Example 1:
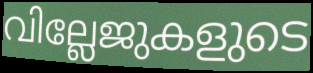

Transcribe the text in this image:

വില്ലേജുകളുടെ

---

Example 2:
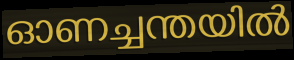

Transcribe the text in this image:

ഓണച്ചന്തയിൽ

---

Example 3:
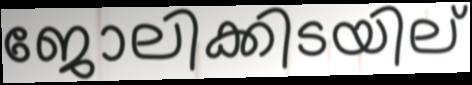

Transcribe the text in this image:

ജോലിക്കിടയില്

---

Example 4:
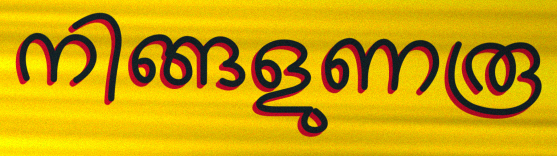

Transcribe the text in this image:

നിങ്ങളുണരൂ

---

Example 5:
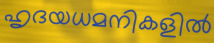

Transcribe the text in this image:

ഹൃദയധമനികളിൽ